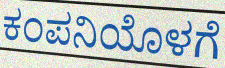
ಕಂಪನಿಯೊಳಗೆ